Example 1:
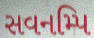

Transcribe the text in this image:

સવનમ્પિ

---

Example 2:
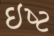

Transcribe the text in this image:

ઇષ્‍ટ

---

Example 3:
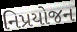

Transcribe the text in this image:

નિપ્રયોજન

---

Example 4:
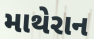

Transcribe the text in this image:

માથેરાન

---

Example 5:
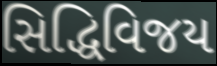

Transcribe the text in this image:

સિદ્ધિવિજય